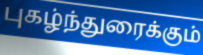
புகழ்ந்துரைக்கும்